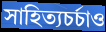
সাহিত্যচর্চাও